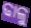
ଢାଳୁ